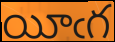
యీఁగ